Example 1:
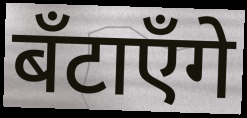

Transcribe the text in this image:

बँटाएँगे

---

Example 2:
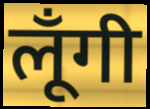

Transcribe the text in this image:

लूँगी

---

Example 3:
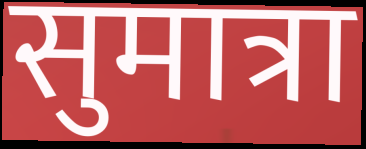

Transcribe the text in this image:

सुमात्रा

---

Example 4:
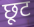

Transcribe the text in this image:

छूट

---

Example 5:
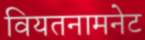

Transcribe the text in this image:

वियतनामनेट